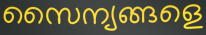
സൈന്യങ്ങളെ